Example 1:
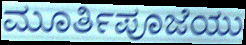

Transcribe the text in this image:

ಮೂರ್ತಿಪೂಜೆಯು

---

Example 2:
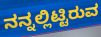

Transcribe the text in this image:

ನನ್ನಲ್ಲಿಟ್ಟಿರುವ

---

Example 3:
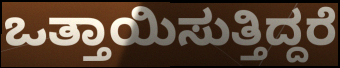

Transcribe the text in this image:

ಒತ್ತಾಯಿಸುತ್ತಿದ್ದರೆ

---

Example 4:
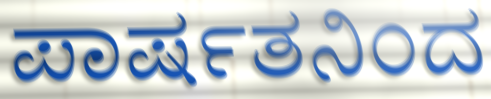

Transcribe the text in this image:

ಪಾರ್ಷತನಿಂದ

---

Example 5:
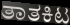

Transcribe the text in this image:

ತಾತಕಿಟ